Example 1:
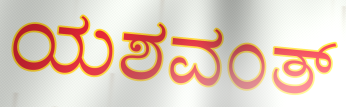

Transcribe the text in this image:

ಯಶವಂತ್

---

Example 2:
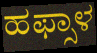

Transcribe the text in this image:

ಹಫ್ಸಾಳ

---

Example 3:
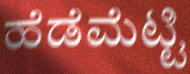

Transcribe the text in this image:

ಹೆಡೆಮೆಟ್ಟಿ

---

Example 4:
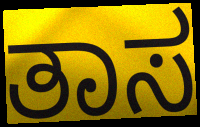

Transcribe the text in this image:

ತಾಸ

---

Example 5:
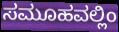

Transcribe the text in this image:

ಸಮೂಹವಲ್ಲಿಂ